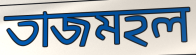
তাজমহল